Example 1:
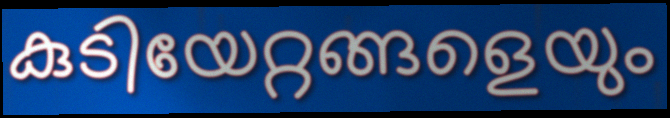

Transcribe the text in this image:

കുടിയേറ്റങ്ങളെയും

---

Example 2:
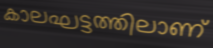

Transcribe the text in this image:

കാലഘട്ടത്തിലാണ്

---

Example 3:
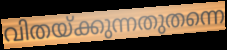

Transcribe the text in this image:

വിതയ്ക്കുന്നതുതന്നെ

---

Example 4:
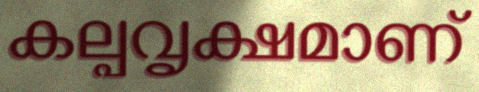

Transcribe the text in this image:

കല്പവൃക്ഷമാണ്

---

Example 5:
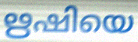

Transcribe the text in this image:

ഋഷിയെ